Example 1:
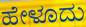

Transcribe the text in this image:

ಹೇಳೂದು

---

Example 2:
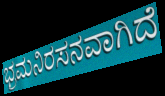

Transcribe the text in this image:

ಭ್ರಮನಿರಸನವಾಗಿದೆ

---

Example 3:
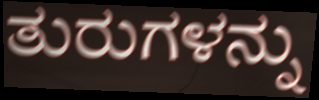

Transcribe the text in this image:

ತುರುಗಳನ್ನು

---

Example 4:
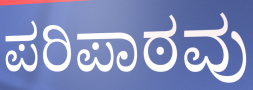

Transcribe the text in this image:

ಪರಿಪಾಠವು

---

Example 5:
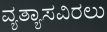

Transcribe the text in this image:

ವ್ಯತ್ಯಾಸವಿರಲು